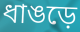
ধাঙড়ে